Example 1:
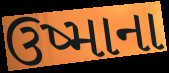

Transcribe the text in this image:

ઉષ્માના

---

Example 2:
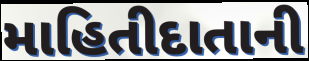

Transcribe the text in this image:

માહિતીદાતાની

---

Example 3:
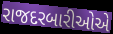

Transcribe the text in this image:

રાજદરબારીઓએ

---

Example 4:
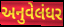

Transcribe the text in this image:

અનુવેલંધર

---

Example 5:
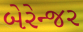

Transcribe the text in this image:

બેરેન્જર